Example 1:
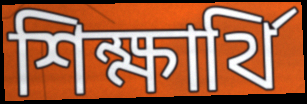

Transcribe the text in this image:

শিক্ষার্থি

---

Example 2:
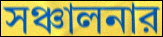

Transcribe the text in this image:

সঞ্চালনার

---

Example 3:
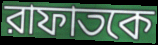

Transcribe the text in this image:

রাফাতকে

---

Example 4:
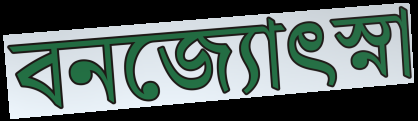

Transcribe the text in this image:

বনজ্যোৎস্না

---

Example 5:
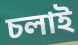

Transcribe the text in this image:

চলাই